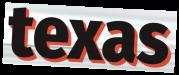
texas